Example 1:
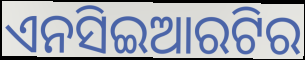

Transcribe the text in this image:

ଏନସିଇଆରଟିର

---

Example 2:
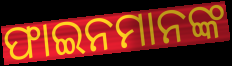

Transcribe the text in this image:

ଫାଇନମାନଙ୍କ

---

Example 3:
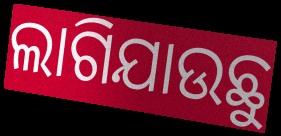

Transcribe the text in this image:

ଲାଗିଯାଉଛୁ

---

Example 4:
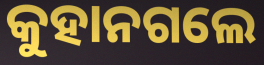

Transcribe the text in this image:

କୁହାନଗଲେ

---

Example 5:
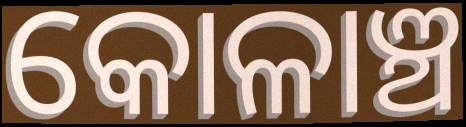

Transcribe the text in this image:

କୋଳାଞ୍ଚ